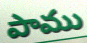
పాము